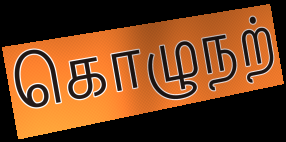
கொழுநற்